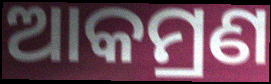
ଆକମ୍ରଣ